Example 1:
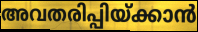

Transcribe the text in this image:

അവതരിപ്പിയ്ക്കാൻ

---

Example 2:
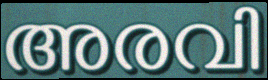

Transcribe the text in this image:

അരവി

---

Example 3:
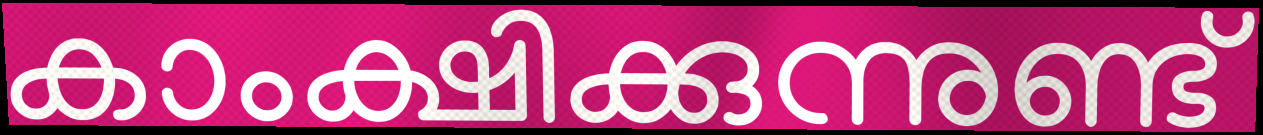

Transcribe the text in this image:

കാംക്ഷിക്കുന്നുണ്ട്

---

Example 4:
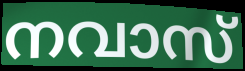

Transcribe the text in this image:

നവാസ്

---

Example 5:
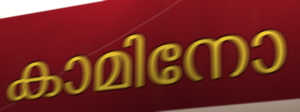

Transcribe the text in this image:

കാമിനോ